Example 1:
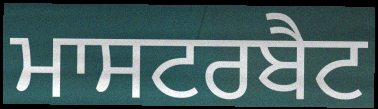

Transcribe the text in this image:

ਮਾਸਟਰਬੈਟ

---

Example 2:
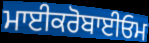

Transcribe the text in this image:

ਮਾਈਕਰੋਬਾਈਓਮ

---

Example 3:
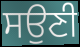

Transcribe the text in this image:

ਸਉਣੀ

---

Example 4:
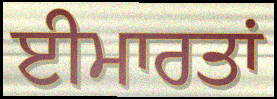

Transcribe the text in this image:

ਈਮਾਰਤਾਂ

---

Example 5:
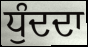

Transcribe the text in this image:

ਧੁੰਦਦਾ